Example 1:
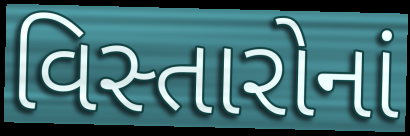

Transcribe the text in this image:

વિસ્તારોનાં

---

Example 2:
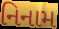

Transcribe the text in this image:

નિનામ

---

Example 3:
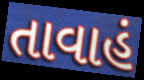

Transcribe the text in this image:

તાવાહં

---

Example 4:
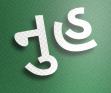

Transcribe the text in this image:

નુહ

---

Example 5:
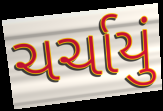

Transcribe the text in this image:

ચર્ચાયું